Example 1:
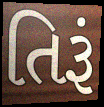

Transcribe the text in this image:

તિરૂં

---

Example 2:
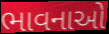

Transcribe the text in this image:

ભાવનાઓ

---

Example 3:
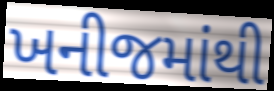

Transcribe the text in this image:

ખનીજમાંથી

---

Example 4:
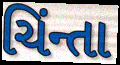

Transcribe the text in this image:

ચિંન્તા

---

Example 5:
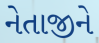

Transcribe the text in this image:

નેતાજીને